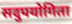
सदुपयोगिता